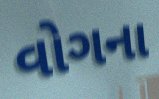
વોગના